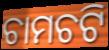
ଚାମଚଟି